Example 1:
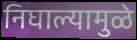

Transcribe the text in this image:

निघाल्यामुळे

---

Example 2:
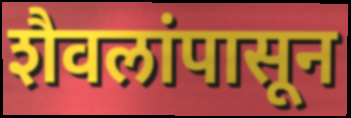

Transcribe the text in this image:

शैवलांपासून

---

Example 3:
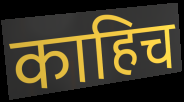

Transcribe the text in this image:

काहिच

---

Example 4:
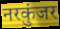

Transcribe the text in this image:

नरकुंजर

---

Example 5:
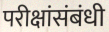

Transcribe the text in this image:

परीक्षांसंबंधी